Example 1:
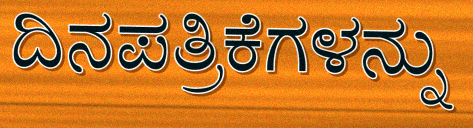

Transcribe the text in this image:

ದಿನಪತ್ರಿಕೆಗಳನ್ನು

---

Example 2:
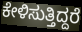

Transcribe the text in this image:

ಕೇಳಿಸುತ್ತಿದ್ದರೆ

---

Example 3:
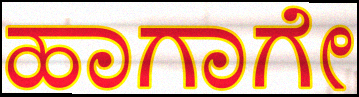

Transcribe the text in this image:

ಹಾಗಾಗೇ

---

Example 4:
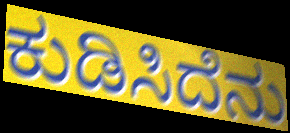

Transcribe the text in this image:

ಕುಡಿಸಿದೆನು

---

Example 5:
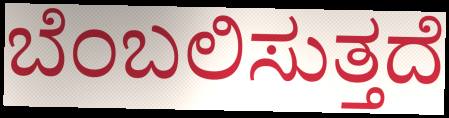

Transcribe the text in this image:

ಬೆಂಬಲಿಸುತ್ತದೆ